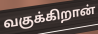
வகுக்கிறான்